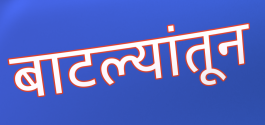
बाटल्यांतून